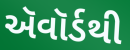
ઍવૉર્ડથી